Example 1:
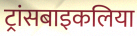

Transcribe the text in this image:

ट्रांसबाइकलिया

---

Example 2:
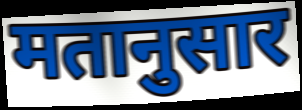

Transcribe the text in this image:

मतानुसार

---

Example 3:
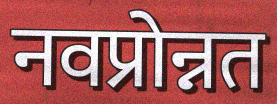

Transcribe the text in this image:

नवप्रोन्नत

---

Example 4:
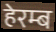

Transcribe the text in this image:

हेरम्ब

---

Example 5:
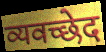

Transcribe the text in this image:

व्यवच्छेद